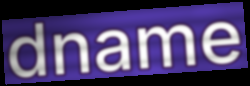
dname